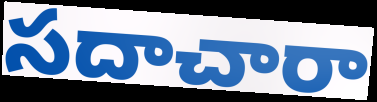
సదాచారా